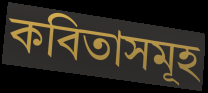
কবিতাসমূহ